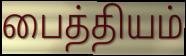
பைத்தியம்